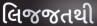
લિજજતથી